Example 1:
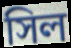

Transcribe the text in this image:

সিল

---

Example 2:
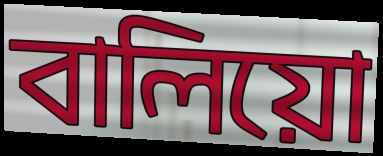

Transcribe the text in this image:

বালিয়ো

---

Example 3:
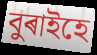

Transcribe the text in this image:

বুৰাইহে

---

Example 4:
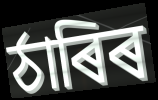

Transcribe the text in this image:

ঠাৰিৰ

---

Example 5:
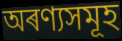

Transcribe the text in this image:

অৰণ্যসমূহ